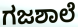
ಗಜಶಾಲೆ